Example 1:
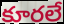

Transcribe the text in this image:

కూరలే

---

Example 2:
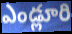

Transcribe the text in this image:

ఎండ్లూరి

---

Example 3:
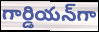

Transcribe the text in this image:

గార్డియన్‌గా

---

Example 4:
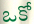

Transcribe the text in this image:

ఒకో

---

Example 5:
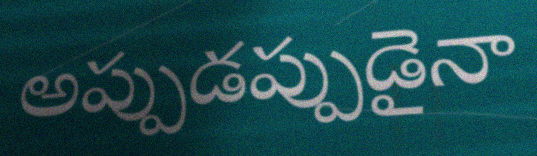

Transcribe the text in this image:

అప్పుడప్పుడైనా